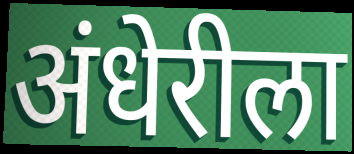
अंधेरीला